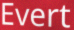
Evert